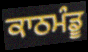
ਕਾਠਮੰਡੂ